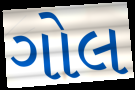
ગોલ